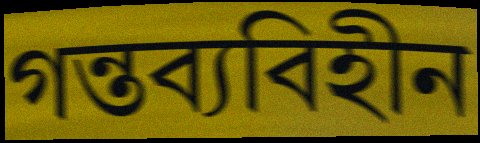
গন্তব্যবিহীন